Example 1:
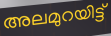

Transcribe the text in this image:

അലമുറയിട്ട്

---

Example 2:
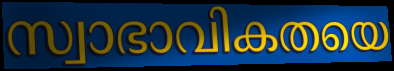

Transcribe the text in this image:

സ്വാഭാവികതയെ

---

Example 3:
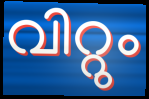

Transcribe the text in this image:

വിറ്റും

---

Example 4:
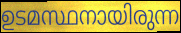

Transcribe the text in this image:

ഉടമസ്ഥനായിരുന്ന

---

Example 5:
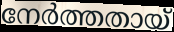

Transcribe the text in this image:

നേർത്തതായ്